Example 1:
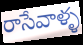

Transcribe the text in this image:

రాసేవాళ్ళ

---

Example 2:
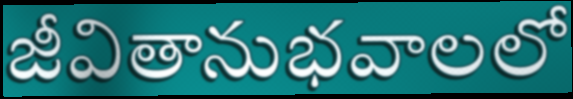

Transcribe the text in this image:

జీవితానుభవాలలో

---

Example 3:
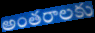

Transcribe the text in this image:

అంతరాలకు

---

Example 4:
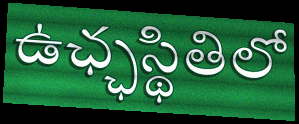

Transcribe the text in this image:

ఉఛ్ఛస్థితిలో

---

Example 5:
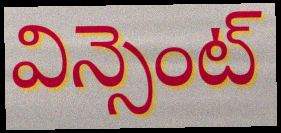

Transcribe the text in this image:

విన్సెంట్